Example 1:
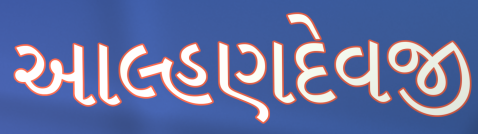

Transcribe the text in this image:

આલ્હણદેવજી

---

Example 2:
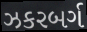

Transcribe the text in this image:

ઝકરબર્ગ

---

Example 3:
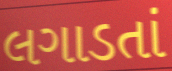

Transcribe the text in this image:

લગાડતાં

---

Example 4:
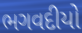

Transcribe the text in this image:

ભગવદીયો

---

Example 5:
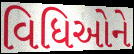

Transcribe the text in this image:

વિધિઓને